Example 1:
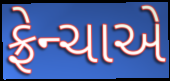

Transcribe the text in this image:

ફ્રેન્ચાએ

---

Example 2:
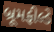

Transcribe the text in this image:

બ્રૂમફીલ્ડે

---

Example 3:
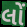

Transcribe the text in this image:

લોં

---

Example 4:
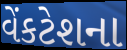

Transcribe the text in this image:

વેંકટેશના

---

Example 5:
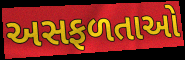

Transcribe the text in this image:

અસફળતાઓ